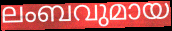
ലംബവുമായ